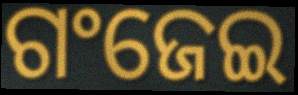
ଗଂଜେଇ